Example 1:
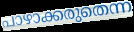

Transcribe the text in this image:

പാഴാക്കരുതെന്ന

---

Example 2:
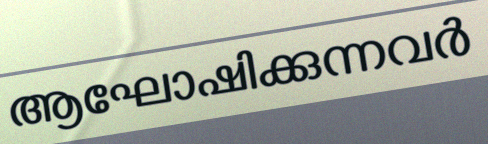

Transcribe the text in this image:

ആഘോഷിക്കുന്നവർ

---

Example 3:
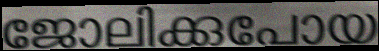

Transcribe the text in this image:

ജോലിക്കുപോയ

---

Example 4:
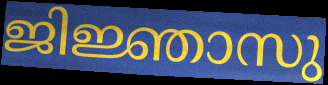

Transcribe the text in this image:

ജിജ്ഞാസു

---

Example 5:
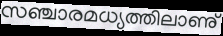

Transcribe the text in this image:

സഞ്ചാരമധ്യത്തിലാണു്